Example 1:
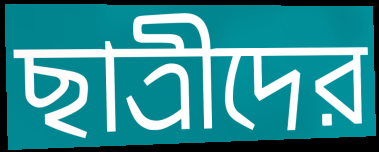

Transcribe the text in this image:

ছাত্রীদের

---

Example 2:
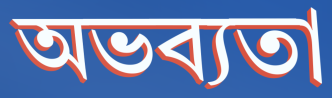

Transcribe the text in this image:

অভব্যতা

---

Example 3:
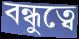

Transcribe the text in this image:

বন্ধুত্বে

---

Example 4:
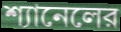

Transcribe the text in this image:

শ্যানেলের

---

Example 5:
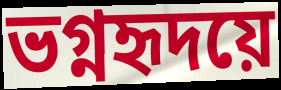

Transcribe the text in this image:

ভগ্নহৃদয়ে